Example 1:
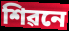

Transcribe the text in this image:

শিৱনে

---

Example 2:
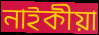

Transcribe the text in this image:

নাইকীয়া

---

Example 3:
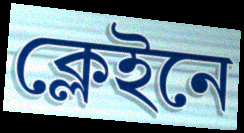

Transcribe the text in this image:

ক্লেইনে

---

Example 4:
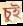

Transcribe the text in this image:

চুই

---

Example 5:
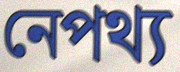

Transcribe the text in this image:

নেপথ্য